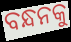
ବନ୍ଧନକୁ